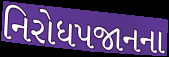
નિરોધપજાનના